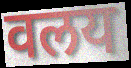
वलय